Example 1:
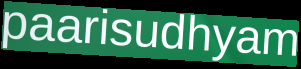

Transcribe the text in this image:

paarisudhyam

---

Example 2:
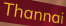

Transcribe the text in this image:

Thannai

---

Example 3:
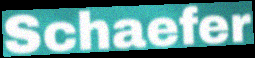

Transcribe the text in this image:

Schaefer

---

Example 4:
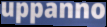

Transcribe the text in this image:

uppanno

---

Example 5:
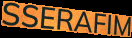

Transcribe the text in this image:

SSERAFIM